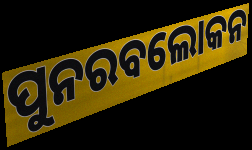
ପୁନରବଲୋକନ